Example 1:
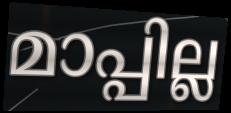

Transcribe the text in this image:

മാപ്പില്ല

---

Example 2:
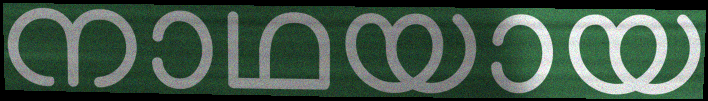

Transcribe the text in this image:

നാഥയായ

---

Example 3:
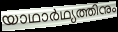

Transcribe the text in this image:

യാഥാർഥ്യത്തിനും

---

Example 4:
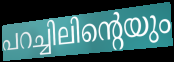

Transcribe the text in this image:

പറച്ചിലിന്റെയും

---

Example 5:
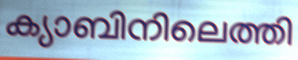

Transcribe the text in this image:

ക്യാബിനിലെത്തി